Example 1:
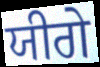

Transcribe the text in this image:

ਯੀਗੇ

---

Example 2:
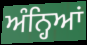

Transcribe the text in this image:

ਅੰਨ੍ਹਿਆਂ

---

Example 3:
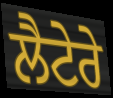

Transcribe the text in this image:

ਲੈਟੇਰੇ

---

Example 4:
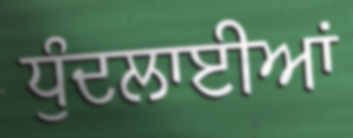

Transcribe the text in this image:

ਧੁੰਦਲਾਈਆਂ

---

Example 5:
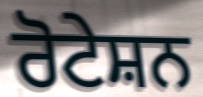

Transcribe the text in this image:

ਰੋਟੇਸ਼ਨ